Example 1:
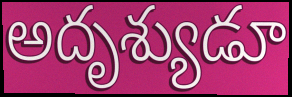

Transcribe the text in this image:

అదృశ్యుడూ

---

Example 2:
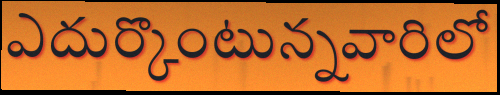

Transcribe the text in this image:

ఎదుర్కొంటున్నవారిలో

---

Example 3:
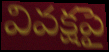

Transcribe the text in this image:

వివక్షపై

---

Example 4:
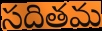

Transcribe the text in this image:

సదితమ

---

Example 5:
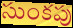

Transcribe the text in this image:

సుంకపు